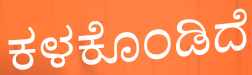
ಕಳಕೊಂಡಿದೆ